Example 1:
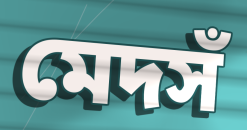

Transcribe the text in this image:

মেদসঁ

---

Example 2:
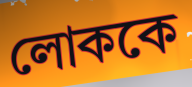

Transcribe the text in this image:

লোককে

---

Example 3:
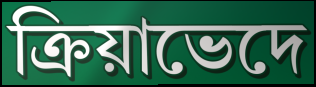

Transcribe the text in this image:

ক্রিয়াভেদে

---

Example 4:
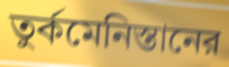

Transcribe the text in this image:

তুর্কমেনিস্তানের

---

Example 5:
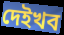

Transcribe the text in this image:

দেইখব